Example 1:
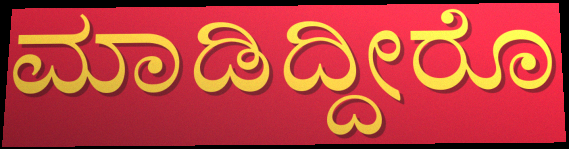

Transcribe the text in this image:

ಮಾಡಿದ್ದೀರೊ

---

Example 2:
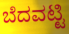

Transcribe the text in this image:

ಬೆದವಟ್ಟಿ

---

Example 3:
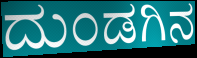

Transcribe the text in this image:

ದುಂಡಗಿನ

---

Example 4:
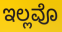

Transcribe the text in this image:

ಇಲ್ಲವೊ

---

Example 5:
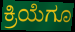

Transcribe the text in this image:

ಕ್ರಿಯೆಗೂ